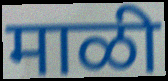
माळी